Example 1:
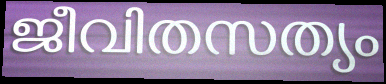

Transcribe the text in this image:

ജീവിതസത്യം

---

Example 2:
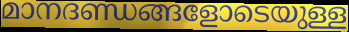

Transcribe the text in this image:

മാനദണ്ഡങ്ങളോടെയുള്ള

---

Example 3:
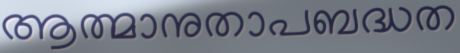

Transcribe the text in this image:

ആത്മാനുതാപബദ്ധത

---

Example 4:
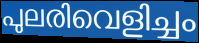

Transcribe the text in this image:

പുലരിവെളിച്ചം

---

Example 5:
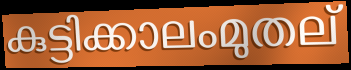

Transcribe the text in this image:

കുട്ടിക്കാലംമുതല്